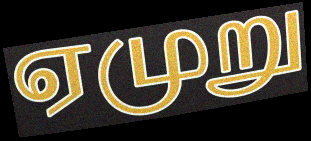
ஏமுறு